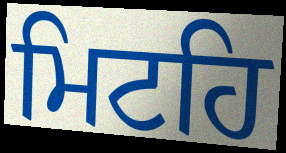
ਮਿਟਹਿ